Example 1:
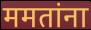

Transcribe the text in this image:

ममतांना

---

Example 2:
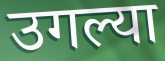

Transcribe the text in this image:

उगल्या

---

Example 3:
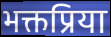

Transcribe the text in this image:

भक्तप्रिया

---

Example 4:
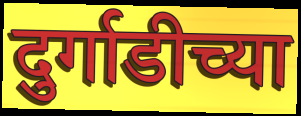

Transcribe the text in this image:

दुर्गाडीच्या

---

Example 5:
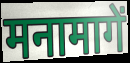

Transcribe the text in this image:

मनामागें